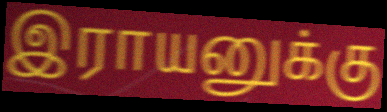
இராயனுக்கு